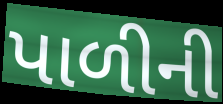
પાળીની